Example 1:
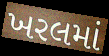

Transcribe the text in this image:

ખરલમાં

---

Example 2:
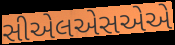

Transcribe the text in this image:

સીએલએસએએ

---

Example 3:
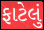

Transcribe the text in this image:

ફાટેલું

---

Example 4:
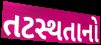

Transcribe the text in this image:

તટસ્થતાનો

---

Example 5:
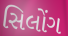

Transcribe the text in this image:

સિલોંગ